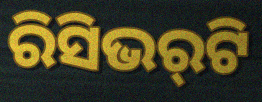
ରିସିଭର୍‌ଟି